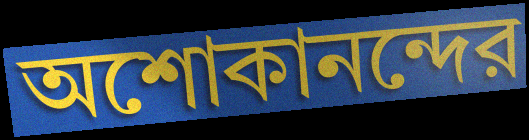
অশোকানন্দের